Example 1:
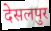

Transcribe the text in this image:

देसलपुर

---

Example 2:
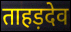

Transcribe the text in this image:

ताहड़देव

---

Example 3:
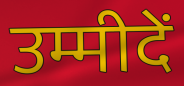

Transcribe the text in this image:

उम्‍मीदें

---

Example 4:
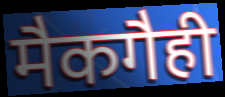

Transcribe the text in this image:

मैकगैही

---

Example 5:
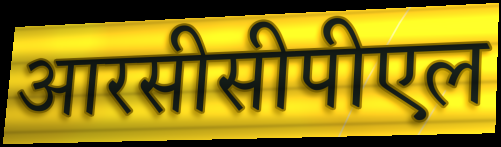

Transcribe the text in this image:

आरसीसीपीएल